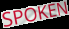
SPOKEN